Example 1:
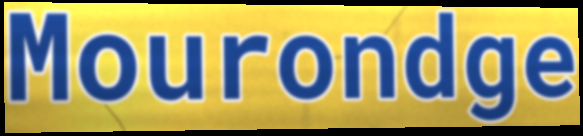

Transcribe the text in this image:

Mourondge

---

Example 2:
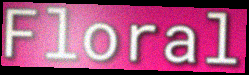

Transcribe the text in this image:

Floral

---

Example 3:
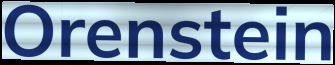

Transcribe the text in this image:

Orenstein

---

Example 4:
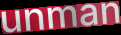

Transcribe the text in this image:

unman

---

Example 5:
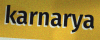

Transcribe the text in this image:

karnarya